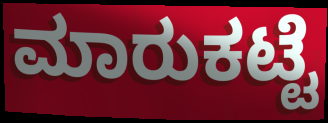
ಮಾರುಕಟ್ಟೆ